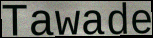
Tawade